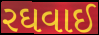
રઘવાઈ